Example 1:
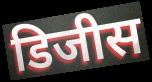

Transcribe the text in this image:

डिजीस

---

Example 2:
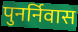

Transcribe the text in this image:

पुनर्निवास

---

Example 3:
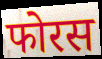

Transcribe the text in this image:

फोरस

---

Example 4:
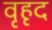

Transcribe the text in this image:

वृहृद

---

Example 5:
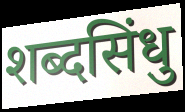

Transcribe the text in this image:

शब्दसिंधु